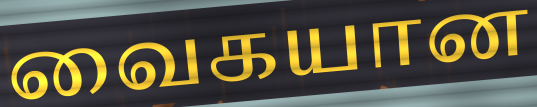
வைகயான